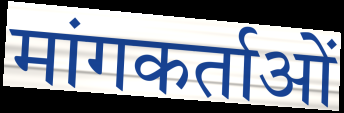
मांगकर्ताओं